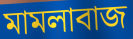
মামলাবাজ